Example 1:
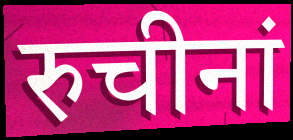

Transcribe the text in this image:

रुचीनां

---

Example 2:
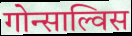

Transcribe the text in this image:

गोन्साल्विस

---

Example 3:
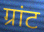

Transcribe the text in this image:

ग्रांट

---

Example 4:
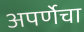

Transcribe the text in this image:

अपर्णेचा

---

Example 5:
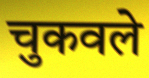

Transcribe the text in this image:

चुकवले